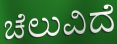
ಚೆಲುವಿದೆ